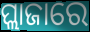
ପ୍ଲାଜାରେ